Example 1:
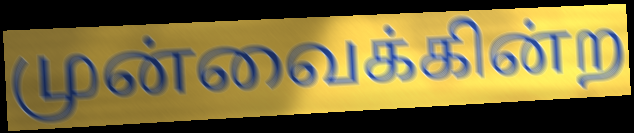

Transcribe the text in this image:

முன்வைக்கின்ற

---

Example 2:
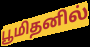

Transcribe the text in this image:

பூமிதனில்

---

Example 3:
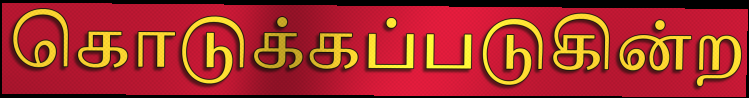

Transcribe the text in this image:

கொடுக்கப்படுகின்ற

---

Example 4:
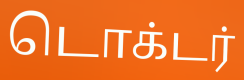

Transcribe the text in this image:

டொக்டர்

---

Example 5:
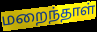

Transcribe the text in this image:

மறைந்தாள்